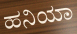
ಹನಿಯಾ